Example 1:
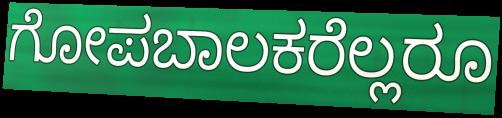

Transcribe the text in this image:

ಗೋಪಬಾಲಕರೆಲ್ಲರೂ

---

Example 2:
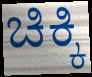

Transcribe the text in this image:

ಚಿಕ್ಕಿ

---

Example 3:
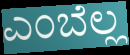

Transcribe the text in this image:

ಎಂಬೆಲ್ಲ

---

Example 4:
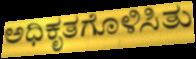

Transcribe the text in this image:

ಅಧಿಕೃತಗೊಳಿಸಿತು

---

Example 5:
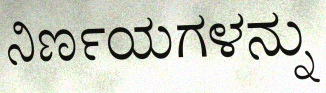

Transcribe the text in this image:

ನಿರ್ಣಯಗಳನ್ನು